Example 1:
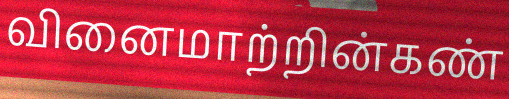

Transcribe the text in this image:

வினைமாற்றின்கண்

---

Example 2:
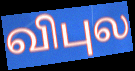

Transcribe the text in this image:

விபுல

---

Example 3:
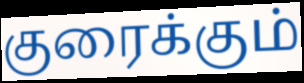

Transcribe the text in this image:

குரைக்கும்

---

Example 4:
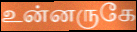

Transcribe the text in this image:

உன்னருகே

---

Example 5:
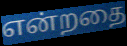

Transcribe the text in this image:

என்றதை